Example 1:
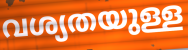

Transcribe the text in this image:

വശ്യതയുള്ള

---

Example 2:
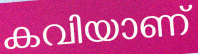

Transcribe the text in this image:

കവിയാണ്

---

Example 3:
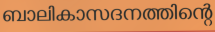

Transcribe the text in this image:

ബാലികാസദനത്തിന്റെ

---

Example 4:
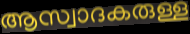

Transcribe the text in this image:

ആസ്വാദകരുള്ള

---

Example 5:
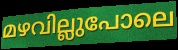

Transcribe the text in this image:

മഴവില്ലുപോലെ